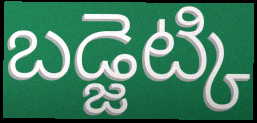
బడ్జెట్కి